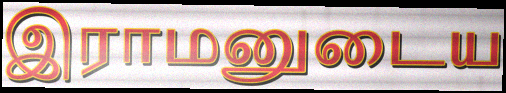
இராமனுடைய